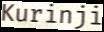
Kurinji